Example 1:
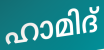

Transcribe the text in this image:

ഹാമിദ്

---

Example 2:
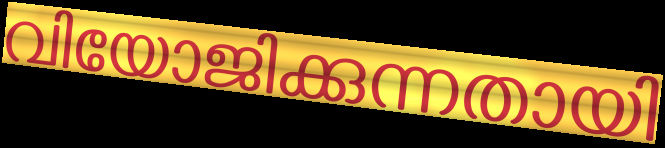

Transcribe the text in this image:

വിയോജിക്കുന്നതായി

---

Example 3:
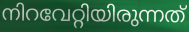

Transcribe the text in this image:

നിറവേറ്റിയിരുന്നത്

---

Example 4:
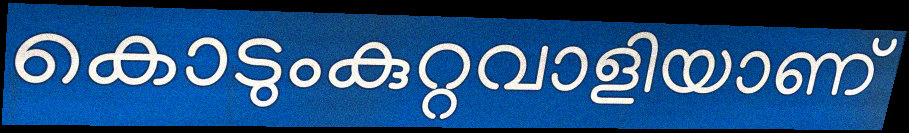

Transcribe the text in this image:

കൊടുംകുറ്റവാളിയാണ്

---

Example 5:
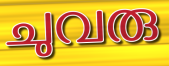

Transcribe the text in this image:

ചുവരു